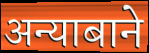
अन्याबाने